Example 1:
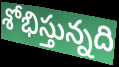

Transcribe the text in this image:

శోభిస్తున్నది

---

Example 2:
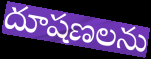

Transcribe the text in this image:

దూషణలను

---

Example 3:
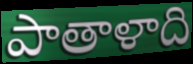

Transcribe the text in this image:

పాతాళాది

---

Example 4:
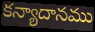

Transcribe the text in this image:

కన్యాదానము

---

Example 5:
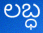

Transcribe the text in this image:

లబ్ధ